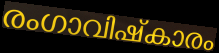
രംഗാവിഷ്‌കാരം